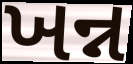
ખન્ન